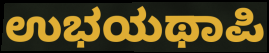
ಉಭಯಥಾಪಿ